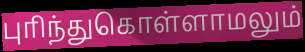
புரிந்துகொள்ளாமலும்